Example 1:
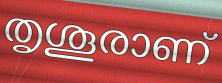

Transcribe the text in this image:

തൃശൂരാണ്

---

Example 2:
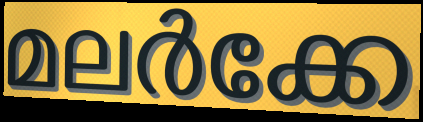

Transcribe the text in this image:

മലർക്കേ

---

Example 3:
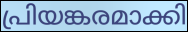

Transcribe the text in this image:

പ്രിയങ്കരമാക്കി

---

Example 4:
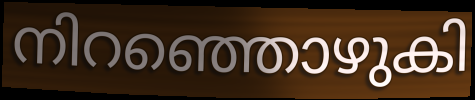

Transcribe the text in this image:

നിറഞ്ഞൊഴുകി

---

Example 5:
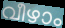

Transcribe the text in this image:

വീഴാം